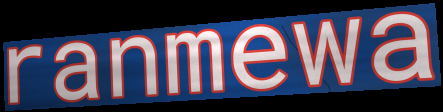
ranmewa